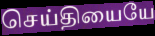
செய்தியையே